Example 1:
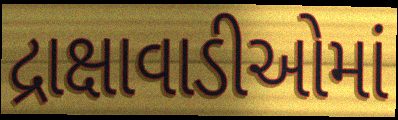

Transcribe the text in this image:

દ્રાક્ષાવાડીઓમાં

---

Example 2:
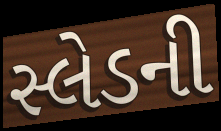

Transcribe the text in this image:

સ્લેડની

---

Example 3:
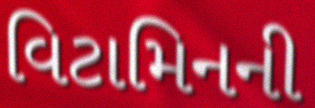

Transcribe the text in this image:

વિટામિનની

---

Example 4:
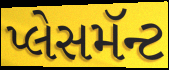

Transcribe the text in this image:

પ્લેસમૅન્ટ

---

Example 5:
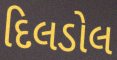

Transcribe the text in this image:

દિલડોલ